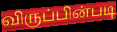
விருப்பின்படி